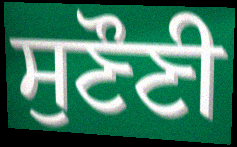
ਸੁਣੌਣੀ